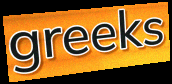
greeks